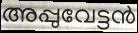
അപ്പുവേട്ടൻ